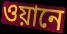
ওয়ানে